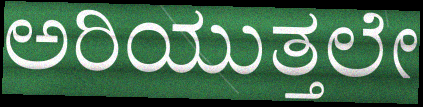
ಅರಿಯುತ್ತಲೇ